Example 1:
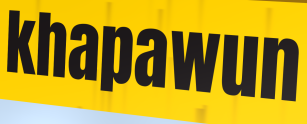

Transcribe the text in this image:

khapawun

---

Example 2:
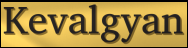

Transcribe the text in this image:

Kevalgyan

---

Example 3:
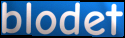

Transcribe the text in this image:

blodet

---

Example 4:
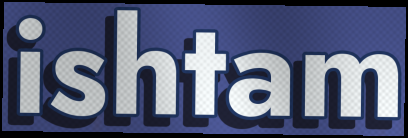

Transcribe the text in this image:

ishtam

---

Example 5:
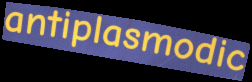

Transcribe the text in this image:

antiplasmodic